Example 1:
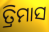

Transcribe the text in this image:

ତ୍ରିମାସ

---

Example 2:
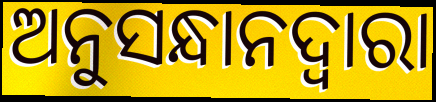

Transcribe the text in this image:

ଅନୁସନ୍ଧାନଦ୍ୱାରା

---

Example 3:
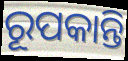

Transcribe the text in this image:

ରୂପକାନ୍ତି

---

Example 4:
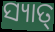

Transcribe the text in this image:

ସ୍ୟାତ୍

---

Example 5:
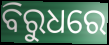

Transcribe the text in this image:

ବିରୁଧରେ